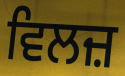
ਵਿਲਜ਼